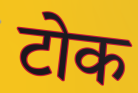
टोक